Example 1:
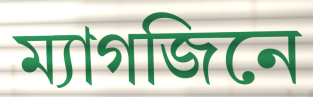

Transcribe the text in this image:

ম্যাগজিনে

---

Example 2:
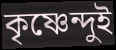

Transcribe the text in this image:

কৃষ্ণেন্দুই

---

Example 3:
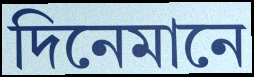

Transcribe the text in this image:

দিনেমানে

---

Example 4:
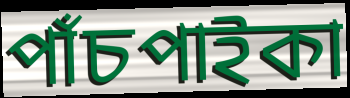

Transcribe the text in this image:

পাঁচপাইকা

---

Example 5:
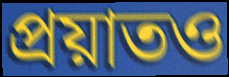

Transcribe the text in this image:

প্রয়াতও